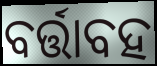
ବର୍ତ୍ତାବହ